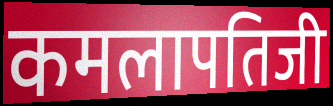
कमलापतिजी